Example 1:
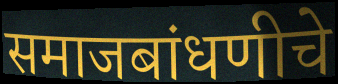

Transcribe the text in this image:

समाजबांधणीचे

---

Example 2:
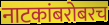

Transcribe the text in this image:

नाटकांबरोबरच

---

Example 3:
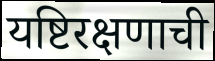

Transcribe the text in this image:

यष्टिरक्षणाची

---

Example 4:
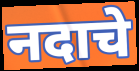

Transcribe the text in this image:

नदाचे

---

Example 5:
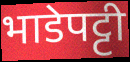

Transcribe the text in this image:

भाडेपट्टी